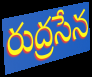
రుద్రసేన